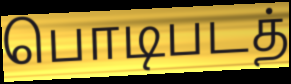
பொடிபடத்